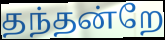
தந்தன்றே